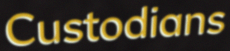
Custodians